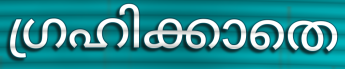
ഗ്രഹിക്കാതെ